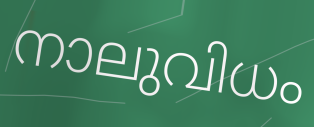
നാലുവിധം